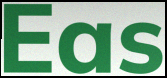
Eas